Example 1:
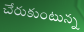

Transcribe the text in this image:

చేరుకుంటున్న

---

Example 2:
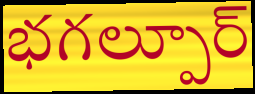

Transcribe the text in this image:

భగల్పూర్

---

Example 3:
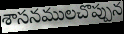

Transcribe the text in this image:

శాసనములచొప్పున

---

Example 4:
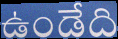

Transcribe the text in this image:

ఉండేది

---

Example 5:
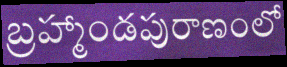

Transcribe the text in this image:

బ్రహ్మాండపురాణంలో